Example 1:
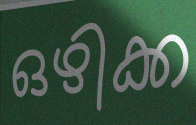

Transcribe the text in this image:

ഒഴിക്ക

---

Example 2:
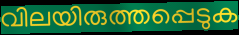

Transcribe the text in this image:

വിലയിരുത്തപ്പെടുക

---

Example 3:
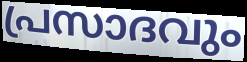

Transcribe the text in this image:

പ്രസാദവും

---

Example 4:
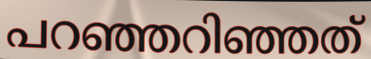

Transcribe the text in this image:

പറഞ്ഞറിഞ്ഞത്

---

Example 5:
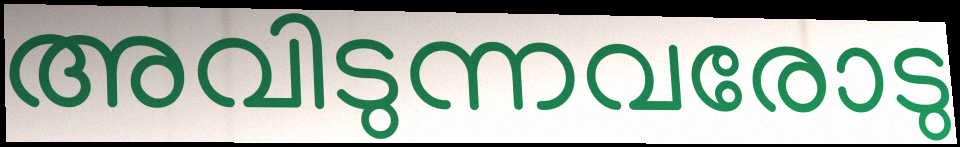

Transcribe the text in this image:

അവിടുന്നവരോടു